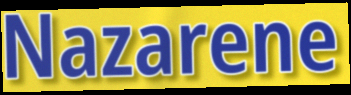
Nazarene